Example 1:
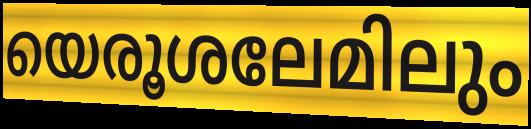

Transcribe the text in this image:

യെരൂശലേമിലും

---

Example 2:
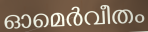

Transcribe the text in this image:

ഓമെർവീതം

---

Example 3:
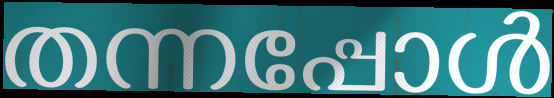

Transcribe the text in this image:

തന്നപ്പോൾ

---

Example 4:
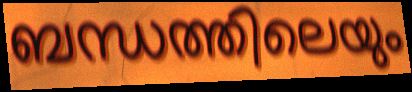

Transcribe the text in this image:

ബന്ധത്തിലെയും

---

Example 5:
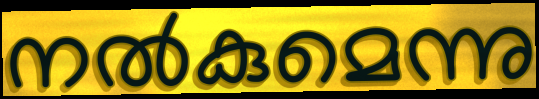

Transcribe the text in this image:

നൽകുമെന്നു